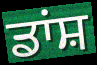
ਡਾਂਸ਼